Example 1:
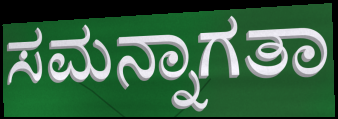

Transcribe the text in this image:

ಸಮನ್ನಾಗತಾ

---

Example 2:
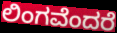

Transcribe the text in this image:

ಲಿಂಗವೆಂದರೆ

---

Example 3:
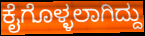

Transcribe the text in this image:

ಕೈಗೊಳ್ಳಲಾಗಿದ್ದು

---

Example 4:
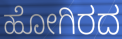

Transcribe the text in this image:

ಹೋಗಿರದ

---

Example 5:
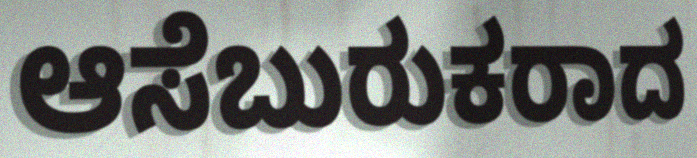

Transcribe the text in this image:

ಆಸೆಬುರುಕರಾದ